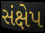
સંક્ષેપ